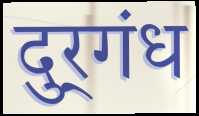
दुर्गंध